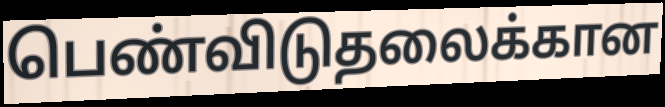
பெண்விடுதலைக்கான